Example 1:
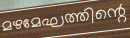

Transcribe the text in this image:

മഴമേഘത്തിന്റെ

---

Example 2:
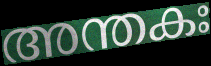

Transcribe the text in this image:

അന്തകഃ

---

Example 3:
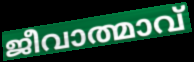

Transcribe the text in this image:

ജീവാത്മാവ്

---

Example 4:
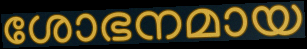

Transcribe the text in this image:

ശോഭനമായ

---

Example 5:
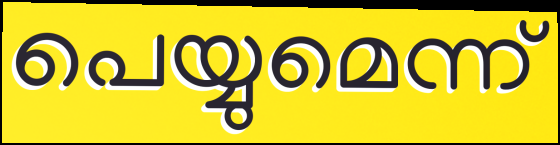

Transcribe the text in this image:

പെയ്യുമെന്ന്